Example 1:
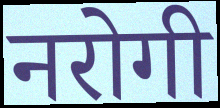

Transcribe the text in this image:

नरोगी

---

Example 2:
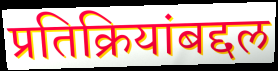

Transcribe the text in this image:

प्रतिक्रियांबद्दल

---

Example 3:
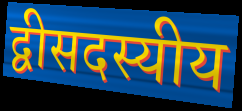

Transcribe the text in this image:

द्वीसदस्यीय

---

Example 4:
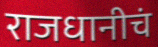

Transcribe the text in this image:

राजधानीचं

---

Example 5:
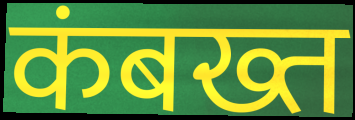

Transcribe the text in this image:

कंबख्त